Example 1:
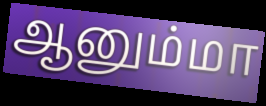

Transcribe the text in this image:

ஆனும்மா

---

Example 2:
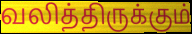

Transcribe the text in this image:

வலித்திருக்கும்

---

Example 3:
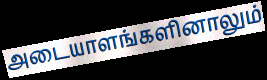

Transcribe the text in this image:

அடையாளங்களினாலும்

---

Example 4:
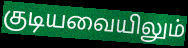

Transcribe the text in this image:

குடியவையிலும்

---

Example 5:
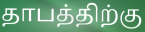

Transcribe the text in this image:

தாபத்திற்கு